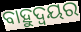
ବାହୁଦ୍ୱୟର